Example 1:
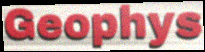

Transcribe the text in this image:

Geophys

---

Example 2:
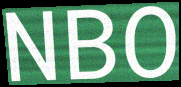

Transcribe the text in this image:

NBO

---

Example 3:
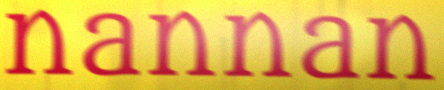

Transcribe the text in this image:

nannan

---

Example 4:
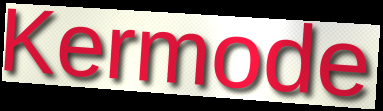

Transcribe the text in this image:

Kermode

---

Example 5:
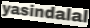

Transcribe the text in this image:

yasindalal